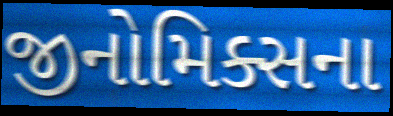
જીનોમિક્સના